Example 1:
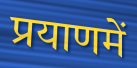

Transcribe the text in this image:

प्रयाणमें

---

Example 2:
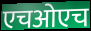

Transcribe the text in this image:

एचओएच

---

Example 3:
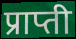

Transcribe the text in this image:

प्राप्ती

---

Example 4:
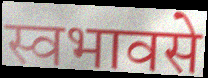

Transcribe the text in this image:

स्वभावसे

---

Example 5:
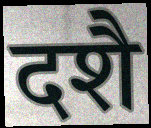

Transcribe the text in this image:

दशै